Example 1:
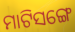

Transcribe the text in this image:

ମାଟିସଙ୍ଗେ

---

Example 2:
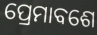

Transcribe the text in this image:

ପ୍ରେମାବଶେ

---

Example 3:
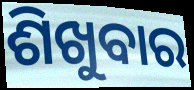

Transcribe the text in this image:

ଶିଖୁବାର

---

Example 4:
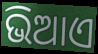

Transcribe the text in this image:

ଭିଆଏ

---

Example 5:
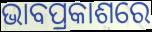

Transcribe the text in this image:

ଭାବପ୍ରକାଶରେ